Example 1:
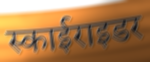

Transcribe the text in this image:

स्काईराइडर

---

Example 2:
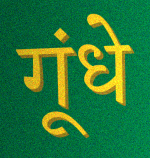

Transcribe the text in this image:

गूंधे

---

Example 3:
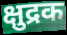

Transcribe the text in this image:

क्षुद्रक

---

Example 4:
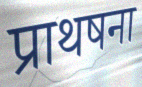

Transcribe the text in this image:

प्राथषना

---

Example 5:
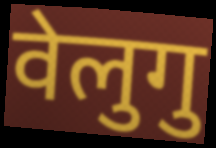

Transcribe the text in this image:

वेलुगु